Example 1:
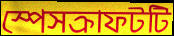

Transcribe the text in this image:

স্পেসক্রাফটটি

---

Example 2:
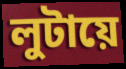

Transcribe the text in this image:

লুটায়ে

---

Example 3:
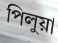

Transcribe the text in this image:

পিলুয়া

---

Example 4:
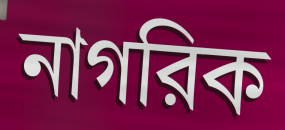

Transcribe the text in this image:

নাগরিক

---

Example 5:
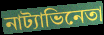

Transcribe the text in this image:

নাট্যাভিনেতা